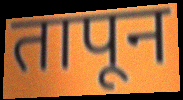
तापून